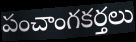
పంచాంగకర్తలు